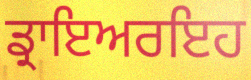
ਡ੍ਰਾਇਅਰਇਹ